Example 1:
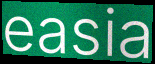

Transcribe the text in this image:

easia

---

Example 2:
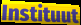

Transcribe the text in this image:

Instituut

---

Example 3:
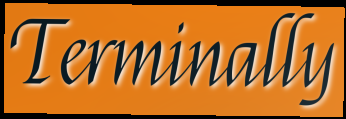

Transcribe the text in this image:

Terminally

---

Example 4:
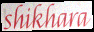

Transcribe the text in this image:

shikhara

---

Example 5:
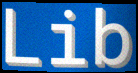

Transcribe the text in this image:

Lib